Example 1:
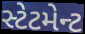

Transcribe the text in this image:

સ્ટેટમેન્ટ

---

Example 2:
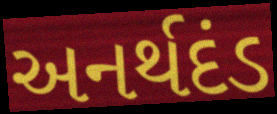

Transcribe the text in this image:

અનર્થદંડ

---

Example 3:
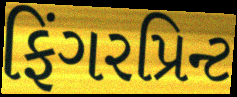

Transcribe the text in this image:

ફિંગરપ્રિન્ટ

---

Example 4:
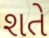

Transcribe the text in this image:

શતે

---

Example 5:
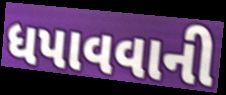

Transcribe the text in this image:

ધપાવવાની